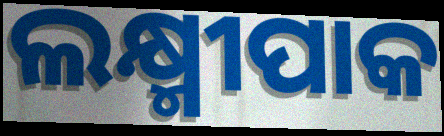
ଲକ୍ଷ୍ମୀପାକ